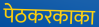
पेठकरकाका